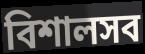
বিশালসব